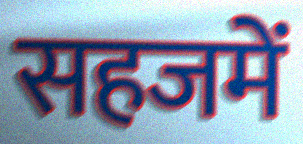
सहजमें